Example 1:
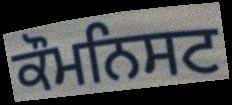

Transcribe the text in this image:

ਕੌਮਨਿਸਟ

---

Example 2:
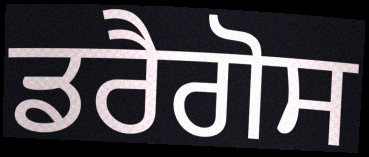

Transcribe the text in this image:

ਡਰੈਗੋਸ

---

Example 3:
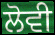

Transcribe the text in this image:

ਲੋਵੀ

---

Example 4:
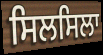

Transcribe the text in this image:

ਸਿਲਸਿਲਾ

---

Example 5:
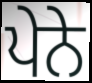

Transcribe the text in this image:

ਪੇਨੇ